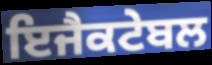
ਇਜੈਕਟੇਬਲ